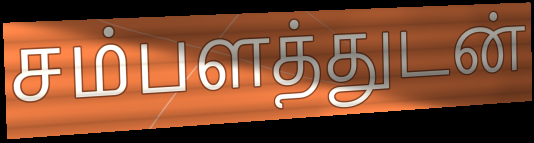
சம்பளத்துடன்